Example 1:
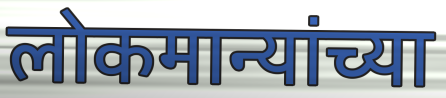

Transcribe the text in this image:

लोकमान्यांच्या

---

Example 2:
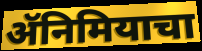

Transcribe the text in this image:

ॲनिमियाचा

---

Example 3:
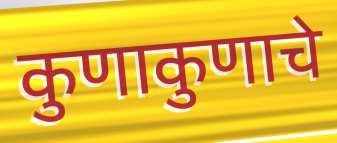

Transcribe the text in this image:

कुणाकुणाचे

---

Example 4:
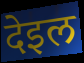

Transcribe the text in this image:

देइल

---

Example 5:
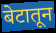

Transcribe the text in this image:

बेटातून